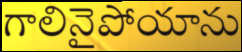
గాలినైపోయాను